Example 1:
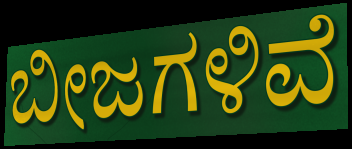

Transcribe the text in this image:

ಬೀಜಗಳಿವೆ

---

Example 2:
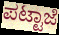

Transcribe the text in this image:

ಪಟ್ಟಾಜೆ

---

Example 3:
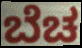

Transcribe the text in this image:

ಬೆಚ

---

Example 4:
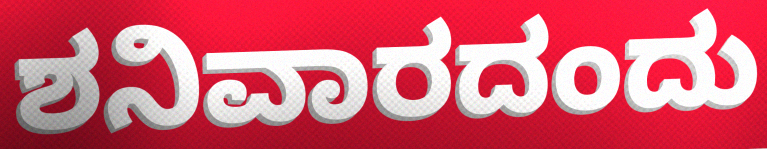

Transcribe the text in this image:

ಶನಿವಾರದಂದು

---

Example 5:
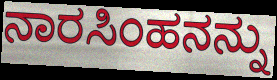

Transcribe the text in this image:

ನಾರಸಿಂಹನನ್ನು